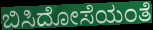
ಬಿಸಿದೋಸೆಯಂತೆ